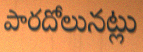
పారదోలునట్లు